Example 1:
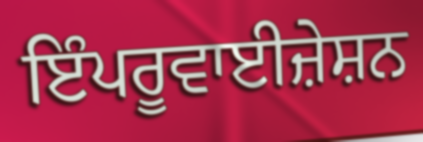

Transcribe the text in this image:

ਇੰਪਰੂਵਾਈਜ਼ੇਸ਼ਨ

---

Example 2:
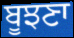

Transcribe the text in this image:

ਬੂਝਣਾ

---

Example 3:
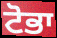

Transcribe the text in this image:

ਟੋਭਾ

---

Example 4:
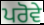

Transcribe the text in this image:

ਪਰੋਵੇ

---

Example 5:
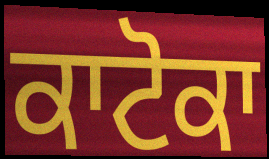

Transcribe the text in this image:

ਕਾਟੋਕਾ